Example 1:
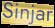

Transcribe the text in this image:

Sinjar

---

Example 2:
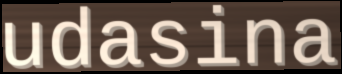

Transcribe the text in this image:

udasina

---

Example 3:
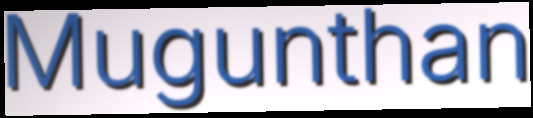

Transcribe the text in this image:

Mugunthan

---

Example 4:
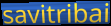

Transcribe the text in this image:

savitribai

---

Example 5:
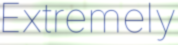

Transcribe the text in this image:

Extremely